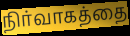
நிர்வாகத்தை